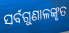
ସର୍ବଗୁଣାଳଙ୍କୃତ